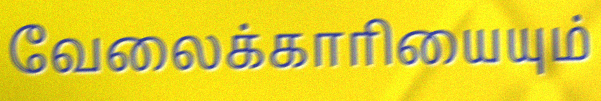
வேலைக்காரியையும்